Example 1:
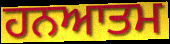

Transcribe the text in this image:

ਹਨਆਤਮ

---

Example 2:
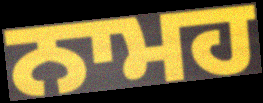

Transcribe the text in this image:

ਨਾਮਹ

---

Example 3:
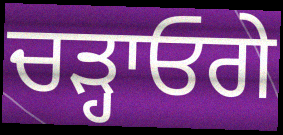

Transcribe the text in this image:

ਚੜ੍ਹਾਓਗੇ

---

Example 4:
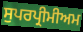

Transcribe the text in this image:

ਸੁਪਰਪ੍ਰੀਮੀਅਮ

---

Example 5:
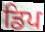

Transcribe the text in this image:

ਡਿਪ